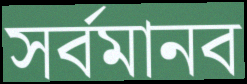
সর্বমানব